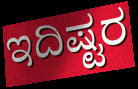
ಇದಿಷ್ಟರ